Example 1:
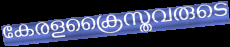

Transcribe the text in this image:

കേരളക്രൈസ്തവരുടെ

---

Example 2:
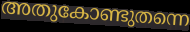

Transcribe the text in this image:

അതുകോണ്ടുതന്നെ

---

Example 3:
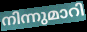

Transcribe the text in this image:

നിന്നുമാറി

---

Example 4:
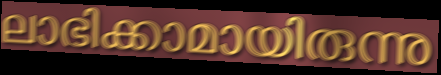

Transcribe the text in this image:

ലാഭിക്കാമായിരുന്നു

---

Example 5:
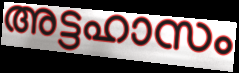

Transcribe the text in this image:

അട്ടഹാസം